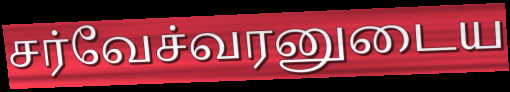
சர்வேச்வரனுடைய